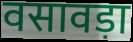
वसावड़ा